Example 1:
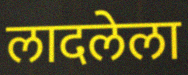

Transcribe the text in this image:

लादलेला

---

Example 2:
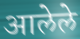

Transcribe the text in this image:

आलेले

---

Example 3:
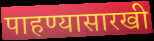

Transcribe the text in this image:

पाहण्यासारखी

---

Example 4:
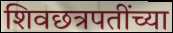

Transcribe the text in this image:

शिवछत्रपतींच्या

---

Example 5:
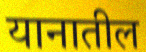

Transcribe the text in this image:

यानातील